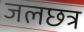
जलछत्र